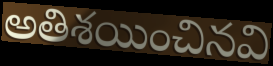
అతిశయించినవి